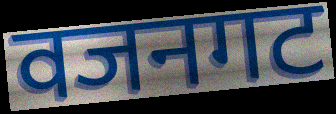
वजनगट